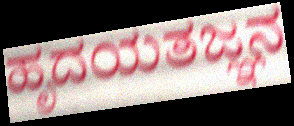
ಹೃದಯತಜ್ಞನ